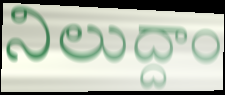
నిలుద్దాం